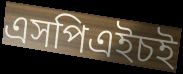
এসপিএইচই